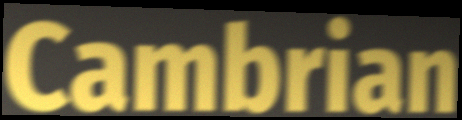
Cambrian